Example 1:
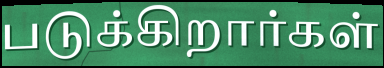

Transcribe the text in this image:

படுக்கிறார்கள்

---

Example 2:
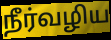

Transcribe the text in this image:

நீர்வழிய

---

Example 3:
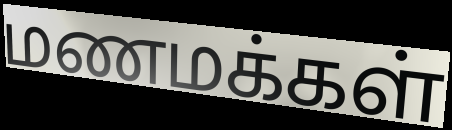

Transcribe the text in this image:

மணமக்கள்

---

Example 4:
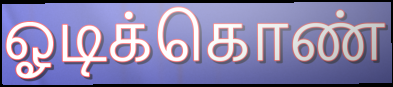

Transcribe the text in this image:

ஓடிக்கொண்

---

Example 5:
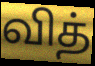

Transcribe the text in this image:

வித்